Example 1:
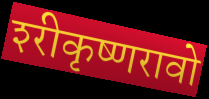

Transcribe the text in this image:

श्रीकृष्णरावो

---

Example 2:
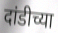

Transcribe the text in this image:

दांडीच्या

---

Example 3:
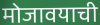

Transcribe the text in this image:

मोजावयाची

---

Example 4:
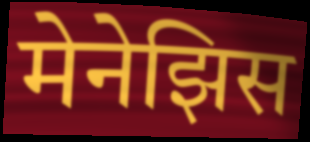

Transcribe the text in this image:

मेनेझिस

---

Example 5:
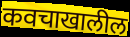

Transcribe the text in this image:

कवचाखालील